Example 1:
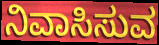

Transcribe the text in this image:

ನಿವಾಸಿಸುವ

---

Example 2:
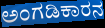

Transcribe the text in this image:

ಅಂಗಡಿಕಾರನ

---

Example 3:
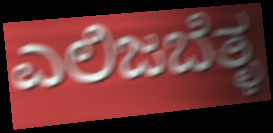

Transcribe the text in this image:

ಎಲಿಜಬೆತ್ಳ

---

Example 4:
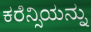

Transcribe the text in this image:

ಕರೆನ್ಸಿಯನ್ನು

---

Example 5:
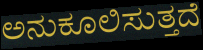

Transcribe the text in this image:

ಅನುಕೂಲಿಸುತ್ತದೆ